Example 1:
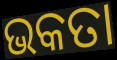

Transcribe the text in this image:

ଭକତା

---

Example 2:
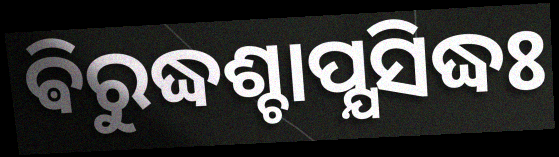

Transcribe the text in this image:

ଵିରୁଦ୍ଧଶ୍ଚାପ୍ଯସିଦ୍ଧଃ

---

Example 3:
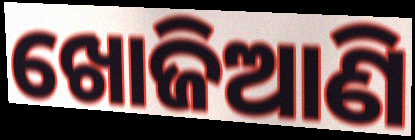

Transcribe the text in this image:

ଖୋଜିଆଣି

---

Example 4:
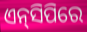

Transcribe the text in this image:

ଏନ୍‌ସିପିରେ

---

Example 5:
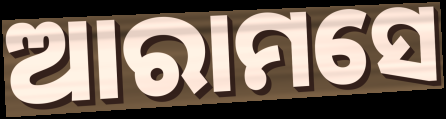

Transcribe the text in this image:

ଆରାମସେ